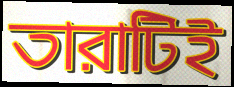
তারাটিই